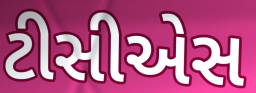
ટીસીએસ